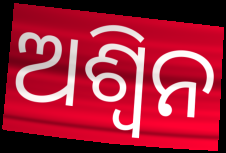
ଅଶ୍ଵିନ